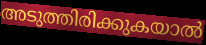
അടുത്തിരിക്കുകയാൽ